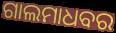
ଗାଲମାଧବର